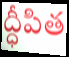
ద్ధీపిత